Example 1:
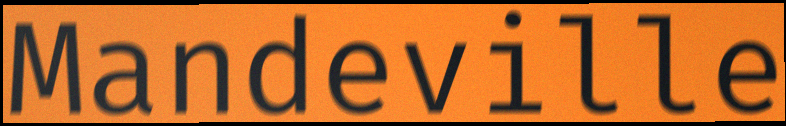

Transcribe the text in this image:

Mandeville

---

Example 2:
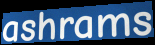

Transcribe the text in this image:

ashrams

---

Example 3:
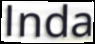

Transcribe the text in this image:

Inda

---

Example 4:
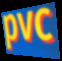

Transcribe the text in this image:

pvc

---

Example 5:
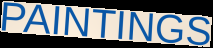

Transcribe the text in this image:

PAINTINGS